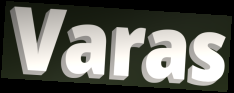
Varas